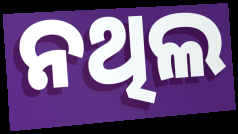
ନଥିଲ